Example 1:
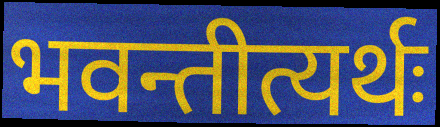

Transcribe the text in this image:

भवन्तीत्यर्थः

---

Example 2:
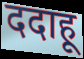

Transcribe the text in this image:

ददाहू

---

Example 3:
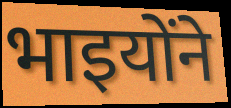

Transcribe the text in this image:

भाइयोंने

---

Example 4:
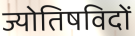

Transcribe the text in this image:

ज्योतिषविदों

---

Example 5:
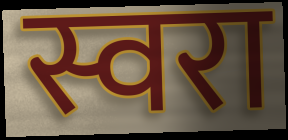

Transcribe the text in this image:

स्‍वरा